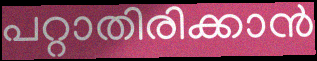
പറ്റാതിരിക്കാൻ